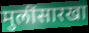
मुलींसारखा